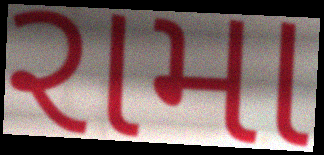
રામા